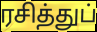
ரசித்துப்